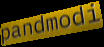
pandmodi